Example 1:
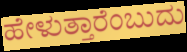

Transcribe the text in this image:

ಹೇಳುತ್ತಾರೆಂಬುದು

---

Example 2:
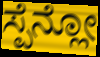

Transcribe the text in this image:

ಸ್ಪೆನ್ಲೋ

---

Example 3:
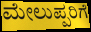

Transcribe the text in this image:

ಮೇಲುಪ್ಪರಿಗೆ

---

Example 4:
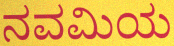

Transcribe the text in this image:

ನವಮಿಯ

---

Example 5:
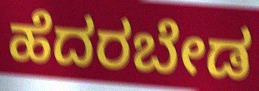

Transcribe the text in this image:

ಹೆದರಬೇಡ